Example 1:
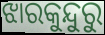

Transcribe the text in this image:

ଝାରକୁନ୍ଦୁରୁ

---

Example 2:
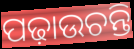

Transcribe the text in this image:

ପଢ଼ାଉଚନ୍ତି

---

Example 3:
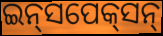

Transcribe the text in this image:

ଇନ୍‌ସପେକ୍‌ସନ୍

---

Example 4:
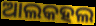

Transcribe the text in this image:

ଆଲକହଲ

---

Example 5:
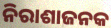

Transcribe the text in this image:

ନିରାଶାଜନକ